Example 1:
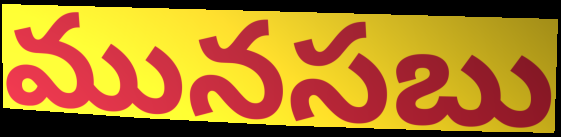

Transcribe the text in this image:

మునసబు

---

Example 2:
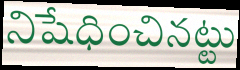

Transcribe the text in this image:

నిషేధించినట్టు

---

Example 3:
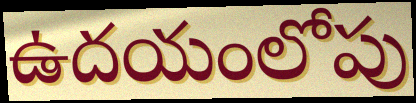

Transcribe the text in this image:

ఉదయంలోపు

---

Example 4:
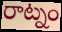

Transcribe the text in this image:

రాట్నం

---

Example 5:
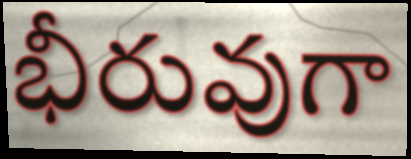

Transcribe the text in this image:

భీరువుగా